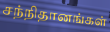
சந்நிதானங்கள்